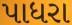
પાધરા